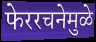
फेररचनेमुळे